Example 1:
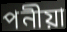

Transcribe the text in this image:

পনীয়া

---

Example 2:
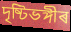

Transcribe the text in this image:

দৃষ্টিভঙ্গীৰ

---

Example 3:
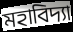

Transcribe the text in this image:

মহাবিদ্যা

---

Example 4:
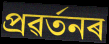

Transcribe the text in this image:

প্ৰৱৰ্তনৰ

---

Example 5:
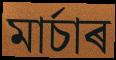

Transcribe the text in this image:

মাৰ্চাৰ